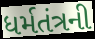
ધર્મતંત્રની